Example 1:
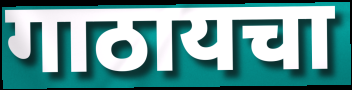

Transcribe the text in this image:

गाठायचा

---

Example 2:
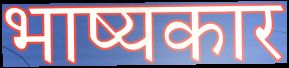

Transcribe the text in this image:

भाष्यकार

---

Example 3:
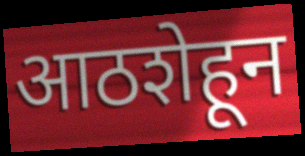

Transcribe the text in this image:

आठशेहून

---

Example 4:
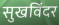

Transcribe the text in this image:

सुखविंदर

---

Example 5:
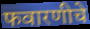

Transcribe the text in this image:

फवारणीचे